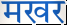
मखर